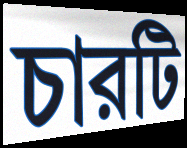
চারটি